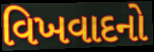
વિખવાદનો